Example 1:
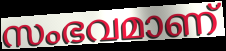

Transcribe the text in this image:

സംഭവമാണ്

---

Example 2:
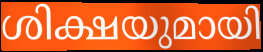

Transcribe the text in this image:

ശിക്ഷയുമായി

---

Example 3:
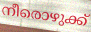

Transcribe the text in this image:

നീരൊഴുക്ക്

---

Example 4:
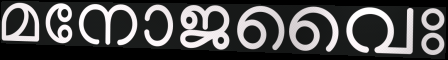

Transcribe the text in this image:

മനോജവൈഃ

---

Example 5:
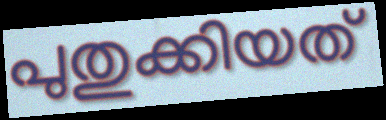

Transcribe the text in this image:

പുതുക്കിയത്